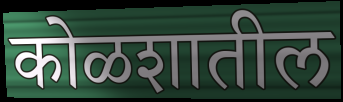
कोळशातील